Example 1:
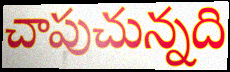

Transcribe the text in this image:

చాపుచున్నది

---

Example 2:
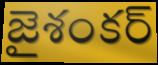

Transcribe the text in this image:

జైశంకర్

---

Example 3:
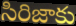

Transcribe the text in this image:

సిరిజాకు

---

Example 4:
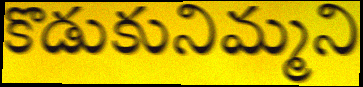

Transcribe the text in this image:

కొడుకునిమ్మని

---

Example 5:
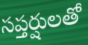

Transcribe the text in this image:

సప్తర్షులతో